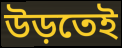
উড়তেই